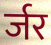
र्जर